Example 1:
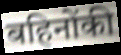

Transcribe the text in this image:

बहिनोंकी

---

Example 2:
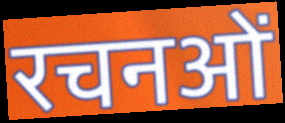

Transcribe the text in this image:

रचनओं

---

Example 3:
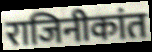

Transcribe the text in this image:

राजिनीकांत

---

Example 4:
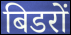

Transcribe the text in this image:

बिडरों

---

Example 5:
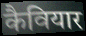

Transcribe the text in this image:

कैवियार